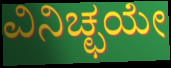
ವಿನಿಚ್ಛಯೇ